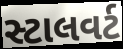
સ્ટાલવર્ટ